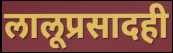
लालूप्रसादही